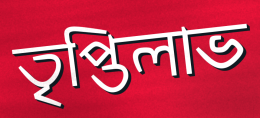
তৃপ্তিলাভ